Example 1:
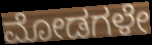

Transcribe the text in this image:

ಮೋಡಗಳೇ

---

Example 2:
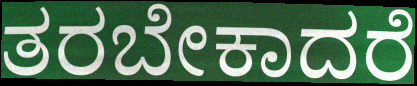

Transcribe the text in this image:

ತರಬೇಕಾದರೆ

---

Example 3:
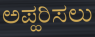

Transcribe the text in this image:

ಅಪ್ಹರಿಸಲು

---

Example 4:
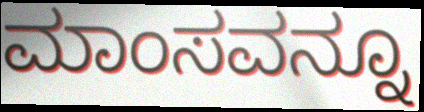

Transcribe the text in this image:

ಮಾಂಸವನ್ನೂ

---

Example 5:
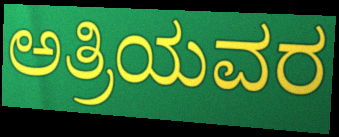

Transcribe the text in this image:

ಅತ್ರಿಯವರ